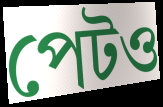
পেটও